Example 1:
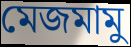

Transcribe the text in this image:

মেজমামু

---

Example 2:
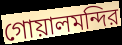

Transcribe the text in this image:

গোয়ালমন্দির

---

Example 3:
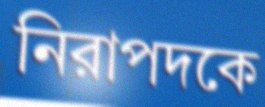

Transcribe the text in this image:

নিরাপদকে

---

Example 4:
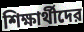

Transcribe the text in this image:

শিক্ষার্থীদের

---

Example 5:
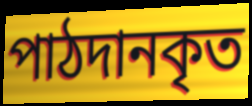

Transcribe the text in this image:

পাঠদানকৃত